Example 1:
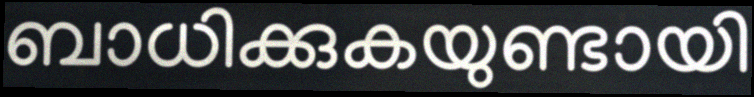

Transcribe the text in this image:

ബാധിക്കുകയുണ്ടായി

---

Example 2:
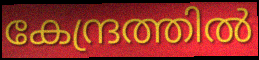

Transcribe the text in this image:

കേന്ദ്രത്തിൽ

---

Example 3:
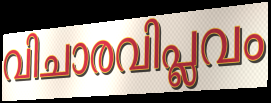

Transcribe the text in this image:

വിചാരവിപ്ലവം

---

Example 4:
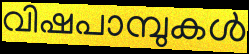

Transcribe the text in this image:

വിഷപാമ്പുകൾ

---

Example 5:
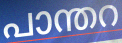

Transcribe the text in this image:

പാന്തറ